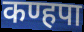
कण्हपा